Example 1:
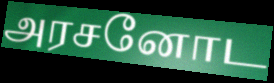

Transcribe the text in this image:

அரசனோட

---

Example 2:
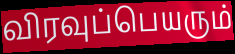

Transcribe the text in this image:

விரவுப்பெயரும்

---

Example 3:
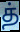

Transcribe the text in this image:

த்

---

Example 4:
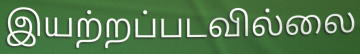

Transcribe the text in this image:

இயற்றப்படவில்லை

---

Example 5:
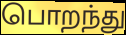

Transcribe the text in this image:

பொறந்து